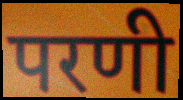
परणी